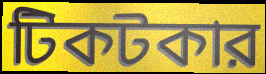
টিকটকার